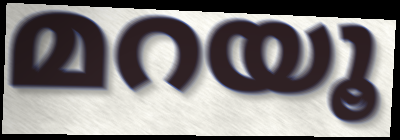
മറയൂ